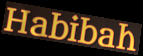
Habibah